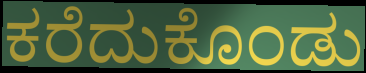
ಕರೆದುಕೊಂಡು